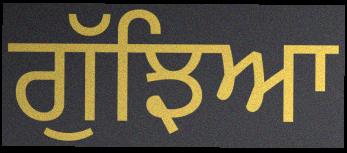
ਗੁੱਝਿਆ